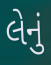
લેનું